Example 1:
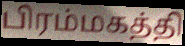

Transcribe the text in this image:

பிரம்மகத்தி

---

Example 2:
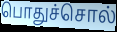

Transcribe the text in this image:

பொதுச்சொல்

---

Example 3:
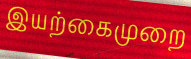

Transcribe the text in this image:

இயற்கைமுறை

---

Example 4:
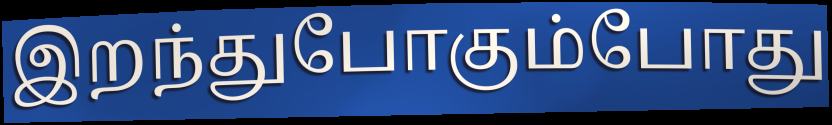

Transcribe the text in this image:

இறந்துபோகும்போது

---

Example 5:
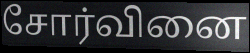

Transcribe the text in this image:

சோர்வினை